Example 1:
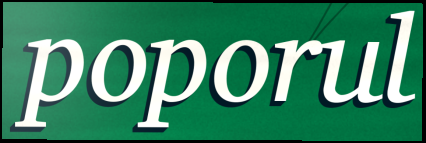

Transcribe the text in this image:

poporul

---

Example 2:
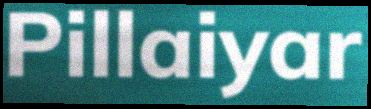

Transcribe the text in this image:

Pillaiyar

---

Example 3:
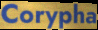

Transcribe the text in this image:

Corypha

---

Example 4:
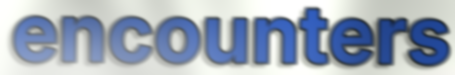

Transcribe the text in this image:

encounters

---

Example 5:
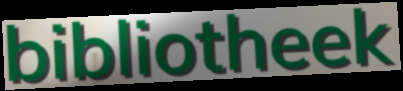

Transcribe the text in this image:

bibliotheek